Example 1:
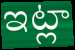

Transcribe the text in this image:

ఇట్లా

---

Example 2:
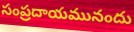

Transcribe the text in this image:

సంప్రదాయమునందు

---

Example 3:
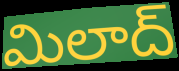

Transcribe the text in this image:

మిలాద్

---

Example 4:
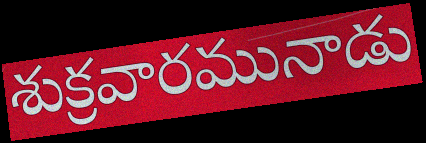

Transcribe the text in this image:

శుక్రవారమునాడు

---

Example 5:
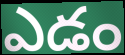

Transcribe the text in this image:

ఎడం